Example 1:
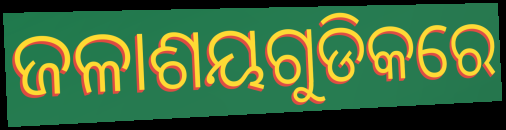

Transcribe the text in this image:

ଜଳାଶୟଗୁଡିକରେ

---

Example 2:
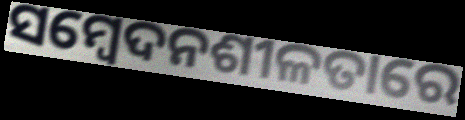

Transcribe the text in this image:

ସମ୍ବେଦନଶୀଳତାରେ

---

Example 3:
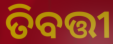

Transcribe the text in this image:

ତିବତ୍ତୀ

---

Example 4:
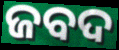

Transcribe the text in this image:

ଜବଦ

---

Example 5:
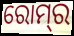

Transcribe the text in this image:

ରୋମ୍‍ର